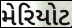
મેરિયોટ